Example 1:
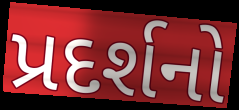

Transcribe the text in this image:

પ્રદર્શનો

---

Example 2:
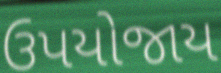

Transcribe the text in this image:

ઉપયોજાય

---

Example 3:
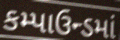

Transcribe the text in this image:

કમ્પાઉન્ડમાં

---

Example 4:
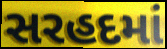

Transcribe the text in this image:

સરહદમાં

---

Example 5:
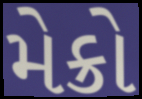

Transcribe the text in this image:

મેક્રો